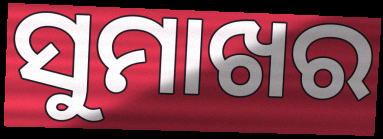
ସୁମାଖର